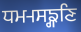
ਧਮ੍ਮਸਙ੍ਗਣਿ